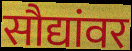
सौद्यांवर